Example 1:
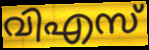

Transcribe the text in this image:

വിഎസ്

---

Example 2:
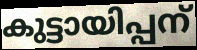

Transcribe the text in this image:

കുട്ടായിപ്പന്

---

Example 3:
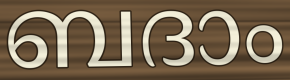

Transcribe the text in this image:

ബദാം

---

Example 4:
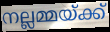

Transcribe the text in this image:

നല്ലമ്മയ്ക്ക്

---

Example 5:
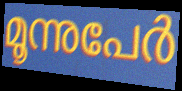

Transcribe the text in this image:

മൂന്നുപേർ